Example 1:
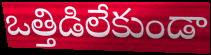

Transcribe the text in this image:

ఒత్తిడిలేకుండా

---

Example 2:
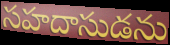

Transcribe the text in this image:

సహదాసుడను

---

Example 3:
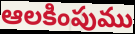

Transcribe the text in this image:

ఆలకింపుము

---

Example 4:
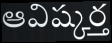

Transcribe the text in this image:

ఆవిష్కర్త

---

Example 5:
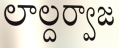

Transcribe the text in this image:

లాల్దర్వాజ